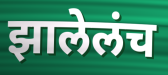
झालेलंच